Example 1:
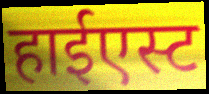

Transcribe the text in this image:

हाईएस्ट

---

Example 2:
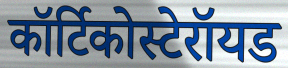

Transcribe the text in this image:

कॉर्टिकोस्टेरॉयड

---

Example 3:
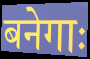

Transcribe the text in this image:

बनेगाः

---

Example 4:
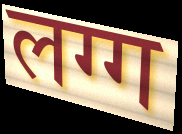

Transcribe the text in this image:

लग्ग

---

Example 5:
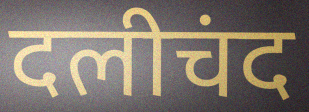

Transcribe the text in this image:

दलीचंद